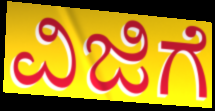
ವಿಜಿಗೆ